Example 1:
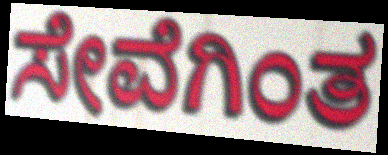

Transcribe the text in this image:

ಸೇವೆಗಿಂತ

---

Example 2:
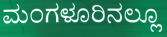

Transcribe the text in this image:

ಮಂಗಳೂರಿನಲ್ಲೂ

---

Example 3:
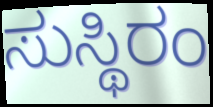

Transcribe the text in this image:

ಸುಸ್ಥಿರಂ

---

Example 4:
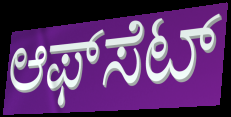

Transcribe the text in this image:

ಆಫ್‍ಸೆಟ್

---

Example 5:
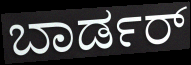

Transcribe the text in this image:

ಬಾರ್ಡರ್